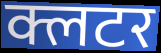
क्लटर